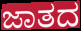
ಜಾತದ